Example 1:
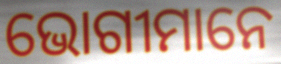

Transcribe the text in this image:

ଭୋଗୀମାନେ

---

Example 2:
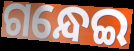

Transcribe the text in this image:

ଗନ୍ଧେଇ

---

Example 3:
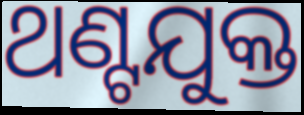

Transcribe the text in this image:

ଥଣ୍ଟଯୁକ୍ତ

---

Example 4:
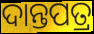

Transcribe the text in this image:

ଦାନ୍ତପତ୍ର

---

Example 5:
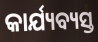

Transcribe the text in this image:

କାର୍ଯ୍ୟବ୍ୟସ୍ତ